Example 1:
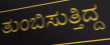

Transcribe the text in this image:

ತುಂಬಿಸುತ್ತಿದ್ದ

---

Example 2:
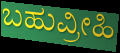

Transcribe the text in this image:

ಬಹುವ್ರೀಹಿ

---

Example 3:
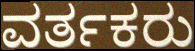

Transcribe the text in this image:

ವರ್ತಕರು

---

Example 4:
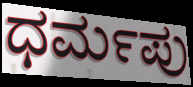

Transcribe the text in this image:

ಧರ್ಮಪು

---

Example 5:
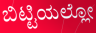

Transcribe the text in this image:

ಬಿಟ್ಟಿಯಲ್ಲೋ